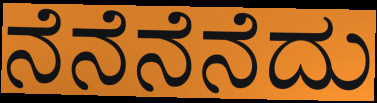
ನೆನೆನೆನೆದು